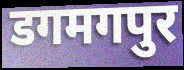
डगमगपुर